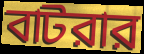
বাটরার